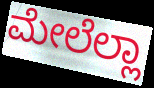
ಮೇಲೆಲ್ಲಾ